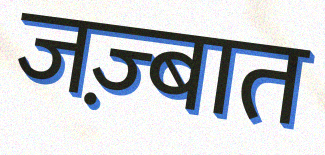
जज़्बात